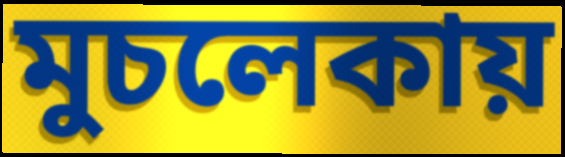
মুচলেকায়